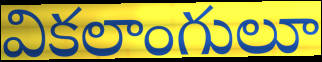
వికలాంగులూ